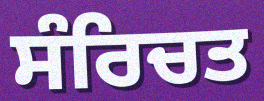
ਸੰਰਿਚਤ